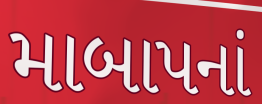
માબાપનાં